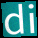
di